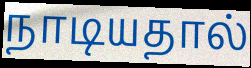
நாடியதால்